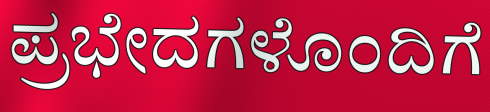
ಪ್ರಭೇದಗಳೊಂದಿಗೆ